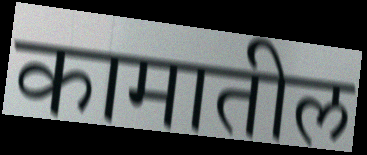
कामातील